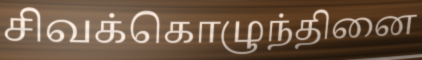
சிவக்கொழுந்தினை